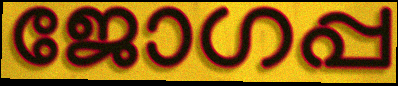
ജോഗപ്പ